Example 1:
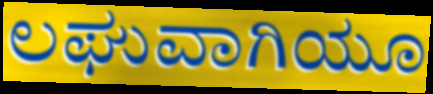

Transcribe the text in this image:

ಲಘುವಾಗಿಯೂ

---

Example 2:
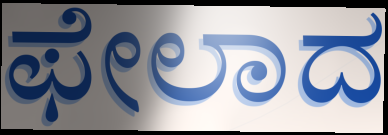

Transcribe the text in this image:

ಫೇಲಾದ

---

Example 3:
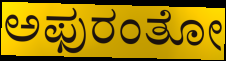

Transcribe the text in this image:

ಅಫುರಂತೋ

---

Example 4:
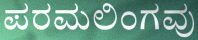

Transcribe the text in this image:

ಪರಮಲಿಂಗವು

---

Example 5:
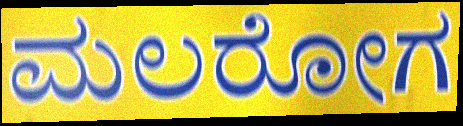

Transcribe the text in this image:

ಮಲರೋಗ